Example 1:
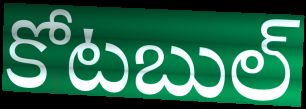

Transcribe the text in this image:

కోటబుల్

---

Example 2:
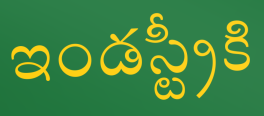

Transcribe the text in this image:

ఇండస్ట్రీకి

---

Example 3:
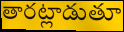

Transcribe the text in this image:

తారట్లాడుతూ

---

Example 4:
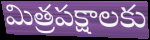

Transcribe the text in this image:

మిత్రపక్షాలకు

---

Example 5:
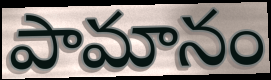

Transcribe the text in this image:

పామానం